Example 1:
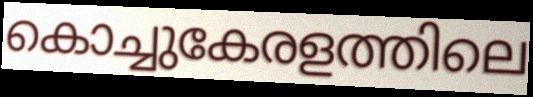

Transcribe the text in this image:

കൊച്ചുകേരളത്തിലെ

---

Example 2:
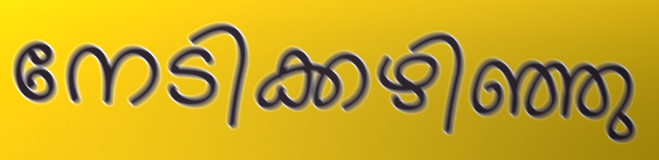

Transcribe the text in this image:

നേടിക്കഴിഞ്ഞു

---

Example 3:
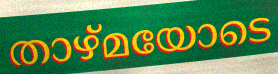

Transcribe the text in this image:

താഴ്മയോടെ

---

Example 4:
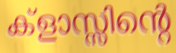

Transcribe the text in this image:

ക്ളാസ്സിന്റെ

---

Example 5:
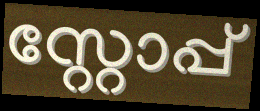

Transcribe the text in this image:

സ്റ്റോപ്പ്